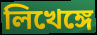
লিখেঙ্গে